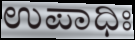
ಉಪಾಧಿಃ